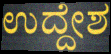
ಉದ್ದೇಶ